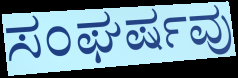
ಸಂಘರ್ಷವು